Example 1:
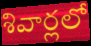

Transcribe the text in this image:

శివార్లలో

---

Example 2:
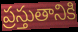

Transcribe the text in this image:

ప్రస్తుతానికి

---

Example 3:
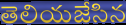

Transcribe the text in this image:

తెలియజేసిన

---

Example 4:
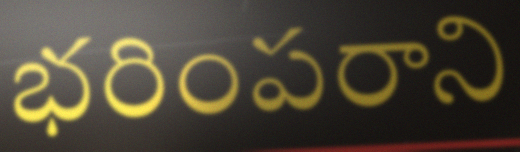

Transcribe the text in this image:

భరింపరాని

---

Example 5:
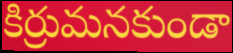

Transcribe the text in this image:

కిర్రుమనకుండా